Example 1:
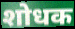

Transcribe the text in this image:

शोधक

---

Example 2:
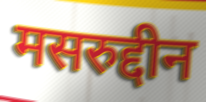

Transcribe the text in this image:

मसरुद्दीन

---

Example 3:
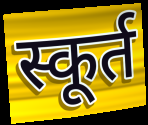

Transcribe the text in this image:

स्कूर्त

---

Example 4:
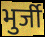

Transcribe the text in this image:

भुर्जी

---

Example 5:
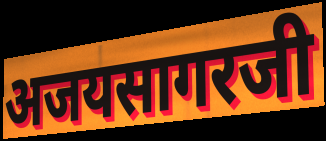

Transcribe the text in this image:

अजयसागरजी